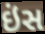
ઇંસ